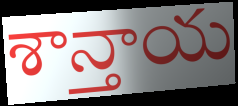
శాన్తాయ